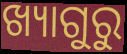
ଖ୍ୟାଗୁରୁ